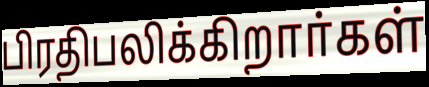
பிரதிபலிக்கிறார்கள்